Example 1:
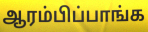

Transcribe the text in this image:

ஆரம்பிப்பாங்க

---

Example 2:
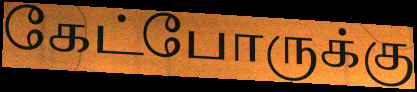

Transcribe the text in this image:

கேட்போருக்கு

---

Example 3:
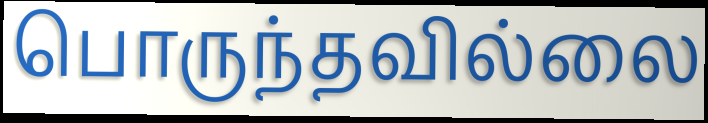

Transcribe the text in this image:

பொருந்தவில்லை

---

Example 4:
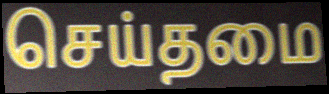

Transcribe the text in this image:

செய்தமை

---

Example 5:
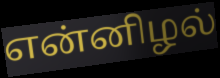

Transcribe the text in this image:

என்னிழல்